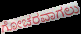
ಗೋಚರವಾಗಲು